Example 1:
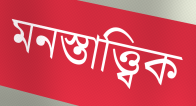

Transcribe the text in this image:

মনস্তাত্ত্বিক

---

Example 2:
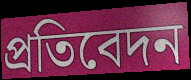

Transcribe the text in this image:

প্ৰতিবেদন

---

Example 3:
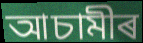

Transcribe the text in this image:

আচামীৰ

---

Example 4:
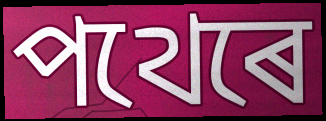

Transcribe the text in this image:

পথেৰে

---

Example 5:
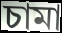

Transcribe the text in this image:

চামা